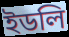
ইডলি